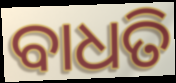
ବାଧତି